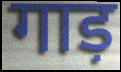
गाड़